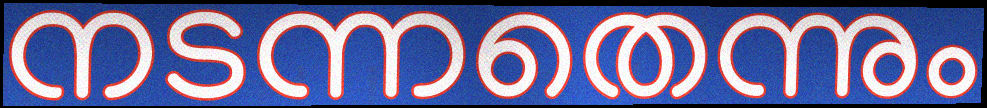
നടന്നതെന്നും